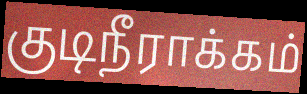
குடிநீராக்கம்